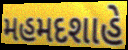
મહમદશાહે